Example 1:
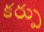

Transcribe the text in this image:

కర్పు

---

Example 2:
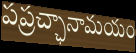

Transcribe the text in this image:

పప్రచ్ఛానామయం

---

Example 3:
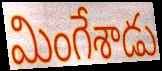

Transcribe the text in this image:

మింగేశాడు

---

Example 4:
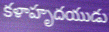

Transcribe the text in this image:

కళాహృదయుడు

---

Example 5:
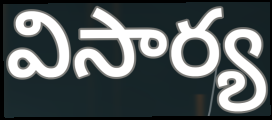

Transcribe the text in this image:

విసార్య